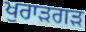
ਖੁਰਾੜਗੜ